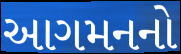
આગમનનો